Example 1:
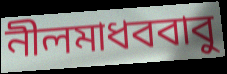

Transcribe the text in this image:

নীলমাধববাবু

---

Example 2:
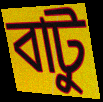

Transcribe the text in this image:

বাটু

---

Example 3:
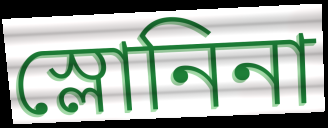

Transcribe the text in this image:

স্লোনিনা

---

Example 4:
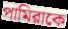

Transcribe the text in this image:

পামিরাকে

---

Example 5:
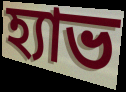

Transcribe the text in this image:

হ্যাভ